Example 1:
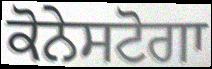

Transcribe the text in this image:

ਕੋਨੇਸਟੋਗਾ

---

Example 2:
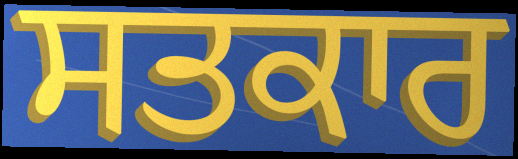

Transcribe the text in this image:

ਸਤਕਾਰ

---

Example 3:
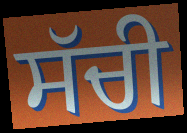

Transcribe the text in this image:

ਸੱਚੀ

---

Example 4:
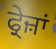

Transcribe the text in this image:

ਫ੍ਰੇਜ਼ਾਂ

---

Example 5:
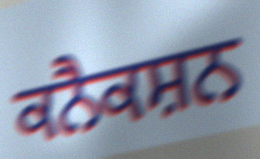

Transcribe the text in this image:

ਕਨੈਕਸ਼ਨ